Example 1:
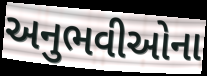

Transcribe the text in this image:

અનુભવીઓના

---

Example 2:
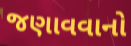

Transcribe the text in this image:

જણાવવાનો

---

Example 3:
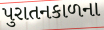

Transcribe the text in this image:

પુરાતનકાળના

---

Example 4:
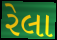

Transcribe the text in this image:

રેલા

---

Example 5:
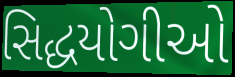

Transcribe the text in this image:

સિદ્ધયોગીઓ